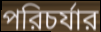
পরিচর্যার